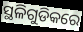
ସ୍ଥଳିଗୁଡିକରେ